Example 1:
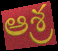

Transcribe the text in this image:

ఆశ్ర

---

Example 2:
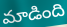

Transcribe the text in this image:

మాడింది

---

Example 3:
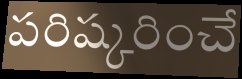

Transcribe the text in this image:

పరిష్కరించే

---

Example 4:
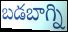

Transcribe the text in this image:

బడబాగ్ని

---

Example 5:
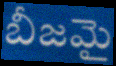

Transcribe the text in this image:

బీజమై